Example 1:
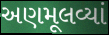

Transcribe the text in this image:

અણમૂલવ્યાં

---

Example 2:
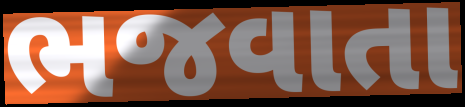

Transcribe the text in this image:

ભજવાતા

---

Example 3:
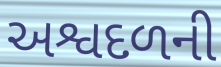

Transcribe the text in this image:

અશ્વદળની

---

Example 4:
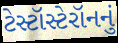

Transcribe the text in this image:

ટેસ્ટૉસ્ટેરૉનનું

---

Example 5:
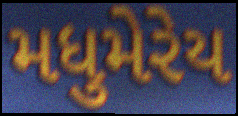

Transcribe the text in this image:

મધુમેરેય